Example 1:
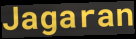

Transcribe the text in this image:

Jagaran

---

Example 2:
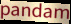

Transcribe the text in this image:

pandam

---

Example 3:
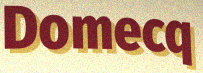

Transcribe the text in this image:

Domecq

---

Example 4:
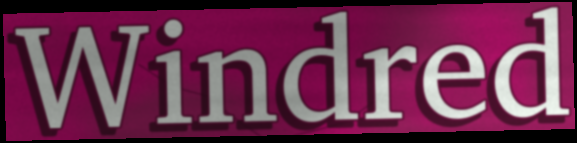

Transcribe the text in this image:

Windred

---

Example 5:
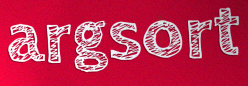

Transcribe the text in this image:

argsort